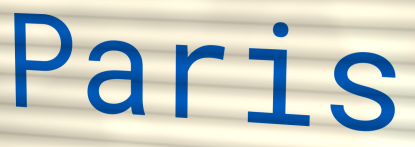
Paris